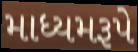
માધ્યમરૂપે